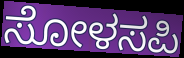
ಸೋಳಸಪಿ